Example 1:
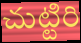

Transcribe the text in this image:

చుట్టిరి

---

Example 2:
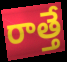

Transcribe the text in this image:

రాత్తే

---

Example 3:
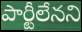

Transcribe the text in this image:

పార్టీలేనని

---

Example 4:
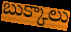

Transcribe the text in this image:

బుక్కాలు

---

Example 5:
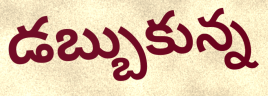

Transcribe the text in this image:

డబ్బుకున్న